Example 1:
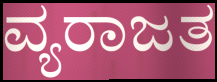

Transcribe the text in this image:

ವ್ಯರಾಜತ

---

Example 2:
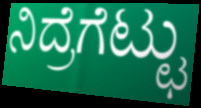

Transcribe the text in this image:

ನಿದ್ರೆಗೆಟ್ಟು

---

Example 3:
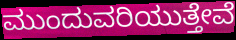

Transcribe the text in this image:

ಮುಂದುವರಿಯುತ್ತೇವೆ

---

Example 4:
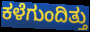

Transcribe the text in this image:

ಕಳೆಗುಂದಿತ್ತು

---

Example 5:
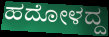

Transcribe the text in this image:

ಹದೋಳದ್ದ